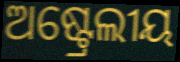
ଅଷ୍ଟ୍ରେଲୀୟ